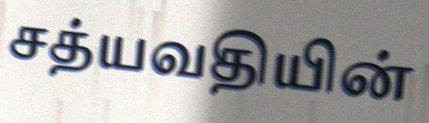
சத்யவதியின்